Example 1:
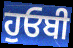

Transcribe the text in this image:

ਹੁਓਬੀ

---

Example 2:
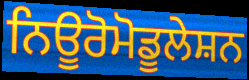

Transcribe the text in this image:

ਨਿਊਰੋਮੋਡੂਲੇਸ਼ਨ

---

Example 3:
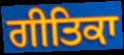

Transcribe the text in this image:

ਗੀਤਿਕਾ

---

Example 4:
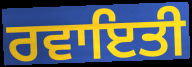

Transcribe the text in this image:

ਰਵਾਇਤੀ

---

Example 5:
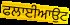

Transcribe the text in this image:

ਫਲਾਈਆਉਟ